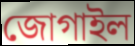
জোগাইল